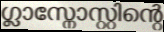
ഗ്ലാസ്നോസ്റ്റിന്റെ